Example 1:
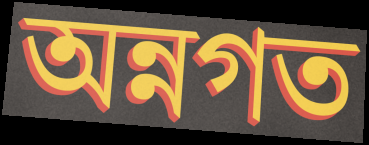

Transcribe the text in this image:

অন্নগত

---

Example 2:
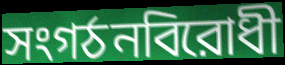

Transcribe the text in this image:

সংগঠনবিরোধী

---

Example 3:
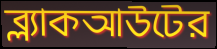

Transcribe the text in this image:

ব্ল্যাকআউটের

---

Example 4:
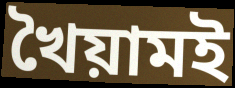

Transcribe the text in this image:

খৈয়ামই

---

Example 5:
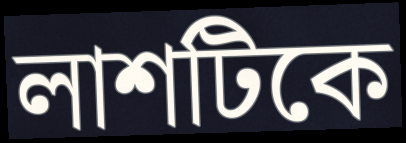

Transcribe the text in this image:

লাশটিকে